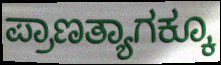
ಪ್ರಾಣತ್ಯಾಗಕ್ಕೂ